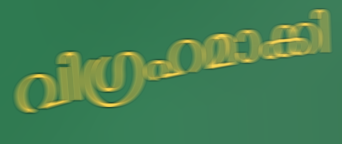
വിഗ്രഹമാക്കി